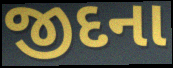
જીદના